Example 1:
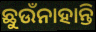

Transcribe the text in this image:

ଛୁଉଁନାହାନ୍ତି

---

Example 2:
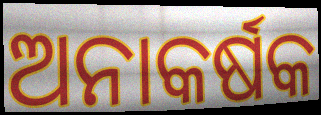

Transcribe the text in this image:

ଅନାକର୍ଷକ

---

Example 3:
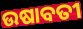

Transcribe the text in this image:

ଉଷାବତୀ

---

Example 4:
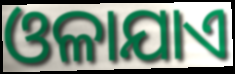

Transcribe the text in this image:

ଓଳାଯାଏ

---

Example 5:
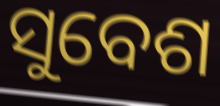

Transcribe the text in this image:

ସୁବେଶ